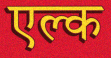
एल्क